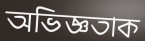
অভিজ্ঞতাক